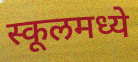
स्कूलमध्ये